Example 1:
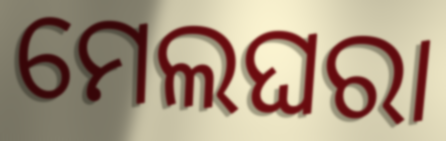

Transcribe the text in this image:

ମେଲଘରା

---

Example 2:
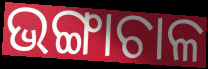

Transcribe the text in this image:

ଭଙ୍ଗାଚାଳ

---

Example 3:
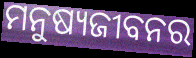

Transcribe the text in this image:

ମନୁଷ୍ୟଜୀବନର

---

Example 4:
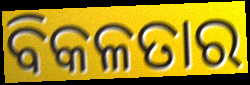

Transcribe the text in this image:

ବିକଳତାର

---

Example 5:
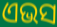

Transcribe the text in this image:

ଏଭସ